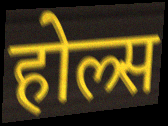
होल्स